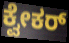
ಕ್ವೇಕರ್